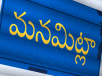
మనమిట్లా